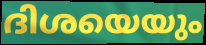
ദിശയെയും